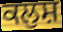
ਕਲੁਸ਼